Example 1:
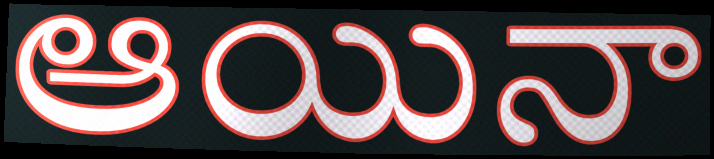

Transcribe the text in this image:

ఆయినా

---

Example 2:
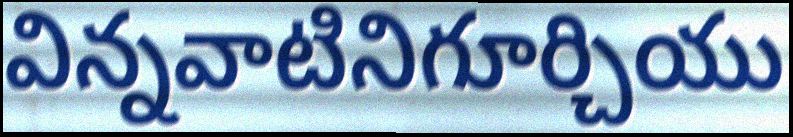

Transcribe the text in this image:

విన్నవాటినిగూర్చియు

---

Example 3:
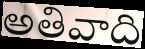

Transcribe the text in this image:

అతివాది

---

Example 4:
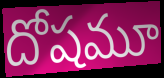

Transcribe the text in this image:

దోషమూ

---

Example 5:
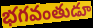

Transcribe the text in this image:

భగవంతుడూ